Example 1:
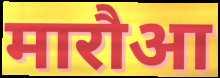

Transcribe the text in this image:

मारौआ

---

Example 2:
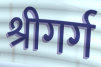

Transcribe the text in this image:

श्रीगर्ग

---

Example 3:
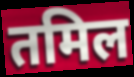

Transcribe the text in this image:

तमिल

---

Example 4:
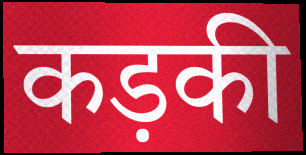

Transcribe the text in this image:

कड़की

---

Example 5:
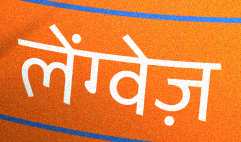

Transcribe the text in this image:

लेंग्वेज़